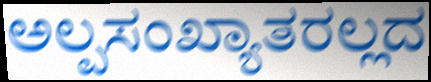
ಅಲ್ಪಸಂಖ್ಯಾತರಲ್ಲದ